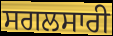
ਸਗਲਸਾਰੀ